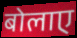
बोलाए